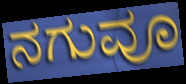
ನಗುವೂ